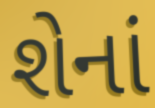
શેનાં